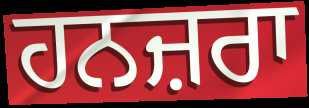
ਹਨਜ਼ਰਾ